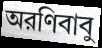
অরণিবাবু